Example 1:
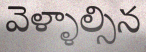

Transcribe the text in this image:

వెళ్ళాల్సిన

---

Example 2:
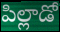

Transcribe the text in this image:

పిల్లాడో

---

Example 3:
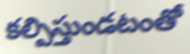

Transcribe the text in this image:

కల్పిస్తుండటంతో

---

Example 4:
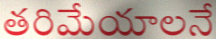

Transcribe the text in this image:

తరిమేయాలనే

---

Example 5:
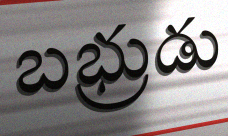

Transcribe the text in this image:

బభ్రుడు